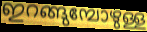
ഇറങ്ങുമ്പോഴുള്ള